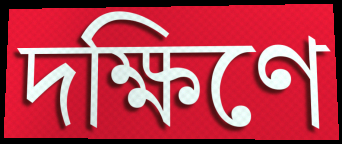
দক্ষিণে